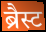
ब्रैस्ट